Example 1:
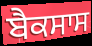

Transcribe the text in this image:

ਬੈਕਸਾਸ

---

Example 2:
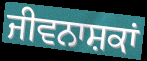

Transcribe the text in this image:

ਜੀਵਨਾਸ਼ਕਾਂ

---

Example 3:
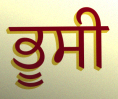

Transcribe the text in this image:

ਭੂਸੀ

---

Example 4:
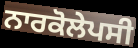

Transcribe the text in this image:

ਨਾਰਕੋਲੇਪਸੀ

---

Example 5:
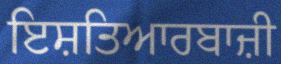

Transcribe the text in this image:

ਇਸ਼ਤਿਆਰਬਾਜ਼ੀ